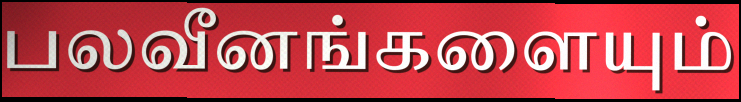
பலவீனங்களையும்